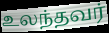
உலந்தவர்